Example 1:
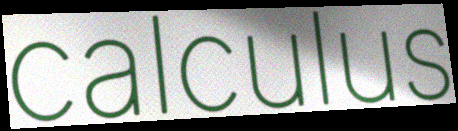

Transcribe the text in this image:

calculus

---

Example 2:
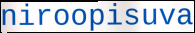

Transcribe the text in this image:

niroopisuva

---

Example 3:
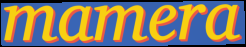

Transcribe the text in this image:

mamera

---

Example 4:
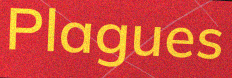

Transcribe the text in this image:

Plagues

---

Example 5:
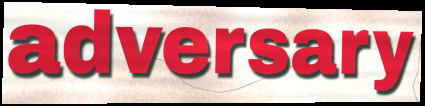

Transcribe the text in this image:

adversary